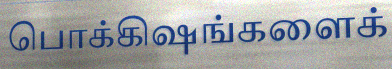
பொக்கிஷங்களைக்